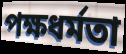
পক্ষধর্মতা